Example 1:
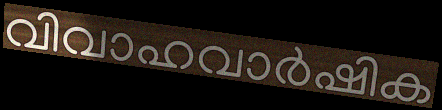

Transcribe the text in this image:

വിവാഹവാർഷിക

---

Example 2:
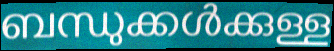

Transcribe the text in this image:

ബന്ധുക്കൾക്കുള്ള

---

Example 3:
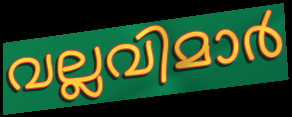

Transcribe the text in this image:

വല്ലവിമാർ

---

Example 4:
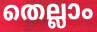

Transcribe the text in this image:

തെല്ലാം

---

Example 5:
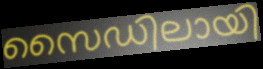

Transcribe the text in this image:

സൈഡിലായി